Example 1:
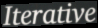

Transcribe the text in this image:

Iterative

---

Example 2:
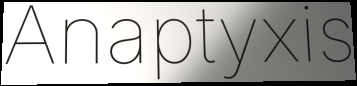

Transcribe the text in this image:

Anaptyxis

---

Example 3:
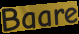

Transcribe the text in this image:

Baare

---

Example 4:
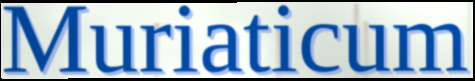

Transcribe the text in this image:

Muriaticum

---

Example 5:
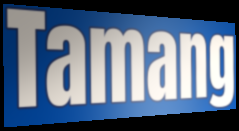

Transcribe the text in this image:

Tamang